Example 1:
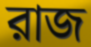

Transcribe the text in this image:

রাজ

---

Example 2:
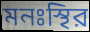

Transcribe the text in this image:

মনঃস্থির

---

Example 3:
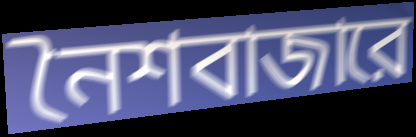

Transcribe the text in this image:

নৈশবাজারে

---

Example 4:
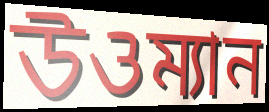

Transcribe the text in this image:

উওম্যান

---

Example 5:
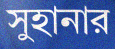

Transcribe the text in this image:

সুহানার